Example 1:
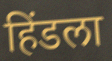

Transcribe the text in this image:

हिंडला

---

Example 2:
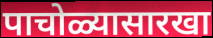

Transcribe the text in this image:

पाचोळ्यासारखा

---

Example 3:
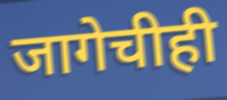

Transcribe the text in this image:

जागेचीही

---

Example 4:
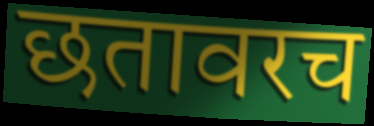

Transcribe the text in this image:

छतावरच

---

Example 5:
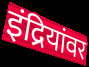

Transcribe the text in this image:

इंद्रियांवर